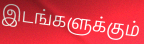
இடங்களுக்கும்